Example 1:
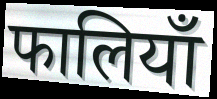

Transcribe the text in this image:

फालियाँ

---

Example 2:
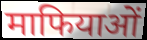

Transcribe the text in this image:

माफियाओं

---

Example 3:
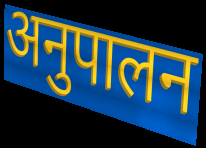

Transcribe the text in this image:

अनुपालन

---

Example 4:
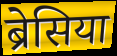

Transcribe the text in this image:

ब्रेसिया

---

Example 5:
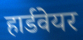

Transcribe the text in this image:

हार्डवेयर